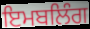
ਇਮਬਲਿੰਗ